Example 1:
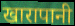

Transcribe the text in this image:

खारापानी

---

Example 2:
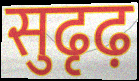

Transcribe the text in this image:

सुढृढ़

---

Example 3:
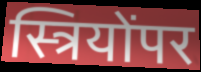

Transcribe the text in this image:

स्त्रियोंपर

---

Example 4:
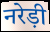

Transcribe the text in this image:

नरेड़ी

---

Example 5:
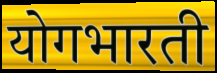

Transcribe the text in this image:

योगभारती